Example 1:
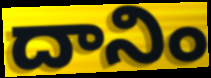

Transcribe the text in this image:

దానిం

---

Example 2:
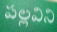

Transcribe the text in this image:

పల్లవిని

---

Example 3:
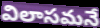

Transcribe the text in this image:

విలాసమనే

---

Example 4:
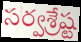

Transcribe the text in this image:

సర్వశ్రేష్ట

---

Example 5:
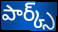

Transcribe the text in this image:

పార్క్స్